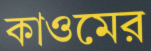
কাওমের